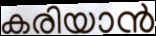
കരിയാൻ